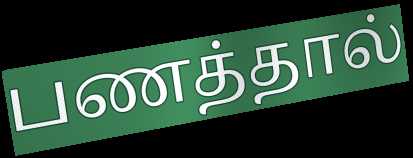
பணத்தால்